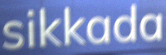
sikkada